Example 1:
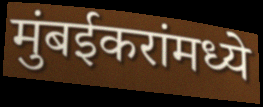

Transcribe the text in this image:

मुंबईकरांमध्ये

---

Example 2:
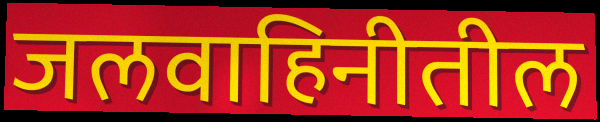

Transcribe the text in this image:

जलवाहिनीतील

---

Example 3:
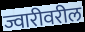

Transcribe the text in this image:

ज्वारीवरील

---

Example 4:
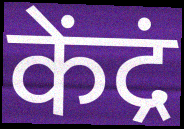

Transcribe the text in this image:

केंद्रं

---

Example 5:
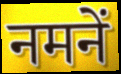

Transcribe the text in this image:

नमनें